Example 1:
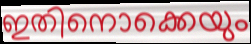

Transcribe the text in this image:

ഇതിനൊക്കെയും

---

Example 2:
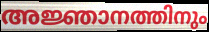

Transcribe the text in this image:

അജ്ഞാനത്തിനും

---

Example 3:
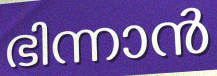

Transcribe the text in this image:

ഭിന്നാൻ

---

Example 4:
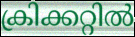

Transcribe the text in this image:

ക്രിക്കറ്റിൽ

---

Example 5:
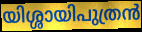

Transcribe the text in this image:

യിശ്ശായിപുത്രൻ